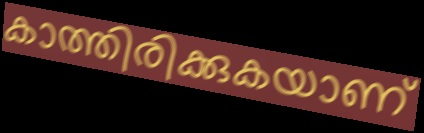
കാത്തിരിക്കുകയാണ്